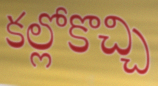
కల్లోకొచ్చి